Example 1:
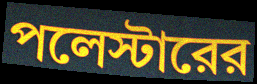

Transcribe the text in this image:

পলেস্টারের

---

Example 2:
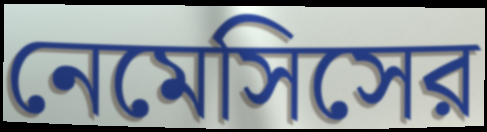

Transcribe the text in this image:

নেমেসিসের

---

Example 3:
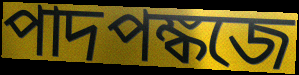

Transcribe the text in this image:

পাদপঙ্কজে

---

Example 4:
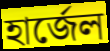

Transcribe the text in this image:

হার্জেল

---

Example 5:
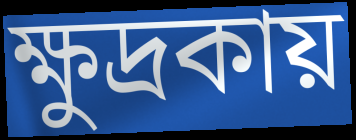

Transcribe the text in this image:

ক্ষুদ্রকায়